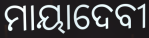
ମାୟାଦେବୀ